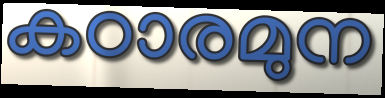
കഠാരമുന